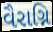
વૈરાગ્નિ